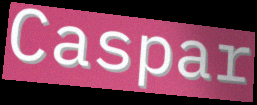
Caspar